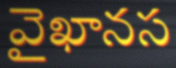
వైఖానస